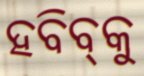
ହବିବ୍‌କୁ